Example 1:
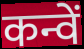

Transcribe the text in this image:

कन्वें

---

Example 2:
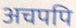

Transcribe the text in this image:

अचपपि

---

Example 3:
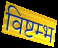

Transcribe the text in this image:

विष्टम्भ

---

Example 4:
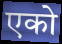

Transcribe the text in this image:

एको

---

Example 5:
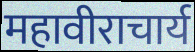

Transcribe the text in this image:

महावीराचार्य